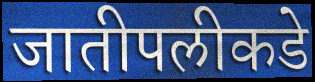
जातीपलीकडे